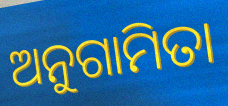
ଅନୁଗାମିତା